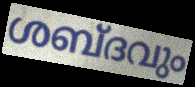
ശബ്ദവും